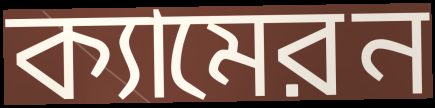
ক্যামেরন